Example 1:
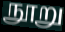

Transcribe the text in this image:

நூறு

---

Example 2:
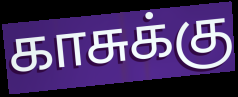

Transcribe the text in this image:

காசுக்கு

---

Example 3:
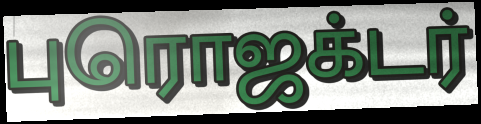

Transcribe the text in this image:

புரொஜக்டர்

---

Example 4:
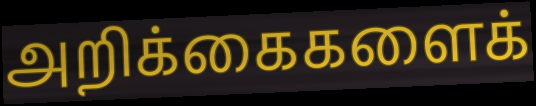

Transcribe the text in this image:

அறிக்கைகளைக்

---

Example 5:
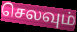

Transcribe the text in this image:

செலவும்